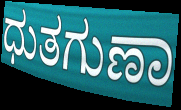
ಧುತಗುಣಾ